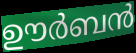
ഊർബൻ